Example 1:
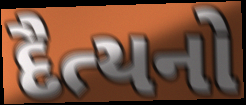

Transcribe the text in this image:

દૈત્યનો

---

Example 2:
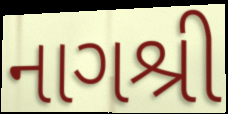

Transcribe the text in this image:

નાગશ્રી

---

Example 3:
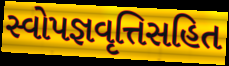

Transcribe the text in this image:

સ્વોપજ્ઞવૃત્તિસહિત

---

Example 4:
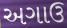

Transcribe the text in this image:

અગાઉ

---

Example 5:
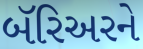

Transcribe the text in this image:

બૅરિઅરને